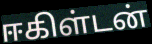
ஈகிள்டன்